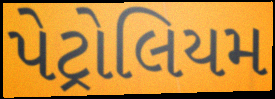
પેટ્રોલિયમ